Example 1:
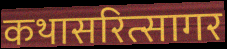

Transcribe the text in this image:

कथासरित्सागर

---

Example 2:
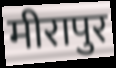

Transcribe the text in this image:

मीरापुर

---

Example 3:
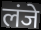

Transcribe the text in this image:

लंजे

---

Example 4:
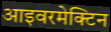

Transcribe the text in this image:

आइवरमेक्टिन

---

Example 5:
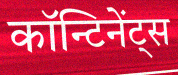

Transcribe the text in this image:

कॉन्टिनेंट्स